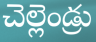
చెల్లెండ్రు